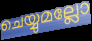
ചെയ്യുമല്ലോ